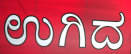
ಉಗಿದ